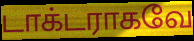
டாக்டராகவே